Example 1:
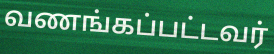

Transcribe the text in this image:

வணங்கப்பட்டவர்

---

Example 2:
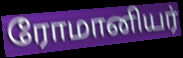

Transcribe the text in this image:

ரோமானியர்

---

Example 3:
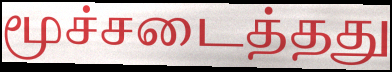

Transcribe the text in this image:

மூச்சடைத்தது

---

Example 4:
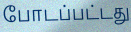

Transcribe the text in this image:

போடப்பட்டது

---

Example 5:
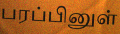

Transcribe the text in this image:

பரப்பினுள்